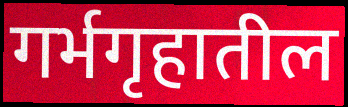
गर्भगृहातील